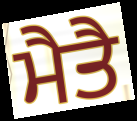
ਮੈਤੈ